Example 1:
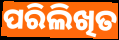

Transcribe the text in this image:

ପରିଲିଖିତ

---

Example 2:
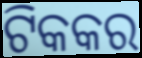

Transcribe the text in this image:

ଟିକକର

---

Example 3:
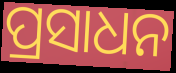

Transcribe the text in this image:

ପ୍ରସାଧନ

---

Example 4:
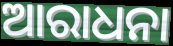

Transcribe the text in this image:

ଆରାଧନା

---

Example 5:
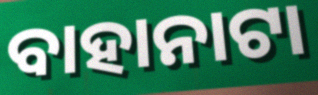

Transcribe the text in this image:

ବାହାନାଟା